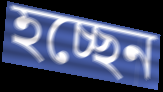
হচ্ছেন